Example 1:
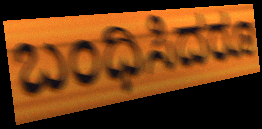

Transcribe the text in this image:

ಬಂಧಿಸಿದರೂ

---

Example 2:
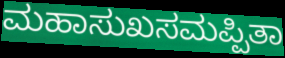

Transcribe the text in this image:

ಮಹಾಸುಖಸಮಪ್ಪಿತಾ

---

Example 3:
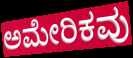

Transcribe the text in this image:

ಅಮೇರಿಕವು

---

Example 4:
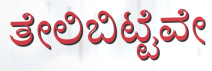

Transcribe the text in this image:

ತೇಲಿಬಿಟ್ಟೆವೇ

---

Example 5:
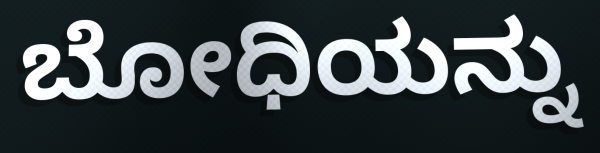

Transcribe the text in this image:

ಬೋಧಿಯನ್ನು